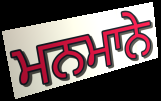
ਮਨਮਾਨੇ